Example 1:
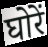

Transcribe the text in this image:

घोरें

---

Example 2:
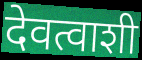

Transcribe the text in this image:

देवत्वाशी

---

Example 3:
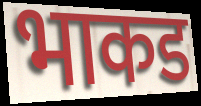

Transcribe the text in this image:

भाकड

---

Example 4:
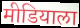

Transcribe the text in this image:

मीडियाला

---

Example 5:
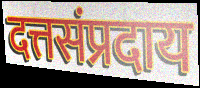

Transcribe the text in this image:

दत्तसंप्रदाय